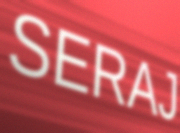
SERAJ